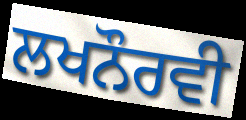
ਲਖਨੌਰਵੀ